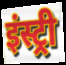
इंस्ट्री